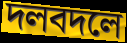
দলবদলে